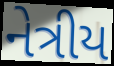
નેત્રીય